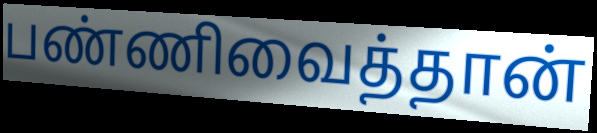
பண்ணிவைத்தான்